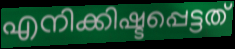
എനിക്കിഷ്ടപ്പെട്ടത്